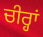
ਚੀਰ੍ਹਾਂ